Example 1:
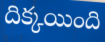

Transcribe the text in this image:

దిక్కయింది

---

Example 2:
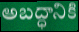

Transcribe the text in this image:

అబద్ధానికి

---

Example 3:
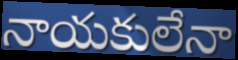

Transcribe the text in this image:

నాయకులేనా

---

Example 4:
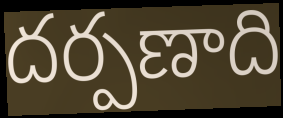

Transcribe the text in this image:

దర్పణాది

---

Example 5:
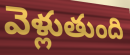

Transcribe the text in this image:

వెళ్లుతుంది